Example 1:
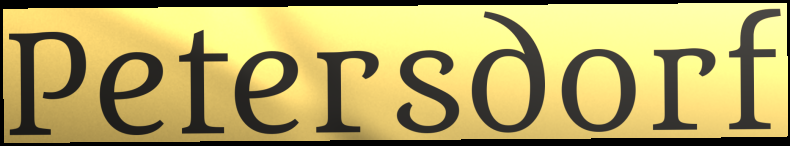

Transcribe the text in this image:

Petersdorf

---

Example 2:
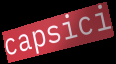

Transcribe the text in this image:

capsici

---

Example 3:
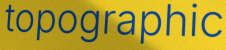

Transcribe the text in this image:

topographic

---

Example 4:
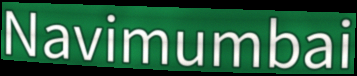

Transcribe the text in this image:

Navimumbai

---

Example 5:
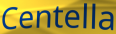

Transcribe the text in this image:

Centella